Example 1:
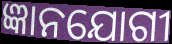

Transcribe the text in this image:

ଜ୍ଞାନଯୋଗୀ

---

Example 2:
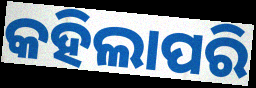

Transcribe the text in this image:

କହିଲାପରି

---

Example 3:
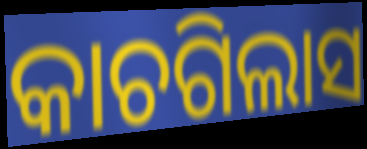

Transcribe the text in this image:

କାଚଗିଲାସ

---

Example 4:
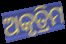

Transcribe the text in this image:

ଅକୃତ୍ରିମ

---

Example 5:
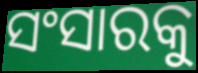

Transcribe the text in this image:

ସଂସାରକୁ